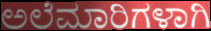
ಅಲೆಮಾರಿಗಳಾಗಿ